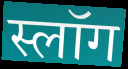
स्लॉग